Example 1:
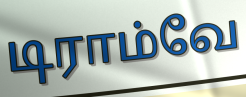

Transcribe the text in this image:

டிராம்வே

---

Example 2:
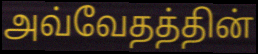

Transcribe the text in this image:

அவ்வேதத்தின்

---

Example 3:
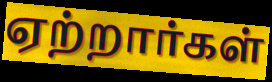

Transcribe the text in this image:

ஏற்றார்கள்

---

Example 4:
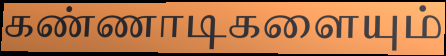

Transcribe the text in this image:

கண்ணாடிகளையும்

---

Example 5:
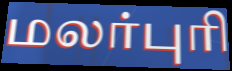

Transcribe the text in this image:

மலர்புரி